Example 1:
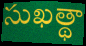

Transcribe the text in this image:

సుఖత్థా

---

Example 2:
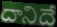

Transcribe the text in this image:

దానిదే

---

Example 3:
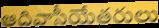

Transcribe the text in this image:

ఆదివాసీయేతరులు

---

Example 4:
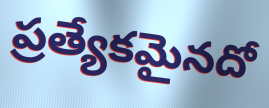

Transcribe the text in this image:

ప్రత్యేకమైనదో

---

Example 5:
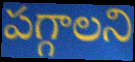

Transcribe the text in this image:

పగ్గాలని